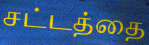
சட்டத்தை